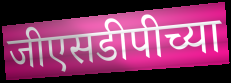
जीएसडीपीच्या